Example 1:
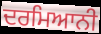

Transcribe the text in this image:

ਦਰਮਿਆਨੀ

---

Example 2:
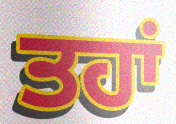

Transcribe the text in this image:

ਤਹਾਂ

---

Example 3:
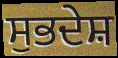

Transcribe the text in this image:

ਸੁਭਦੇਸ਼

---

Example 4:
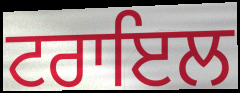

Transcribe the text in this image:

ਟਰਾਇਲ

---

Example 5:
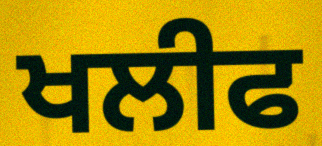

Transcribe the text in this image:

ਖਲੀਫ